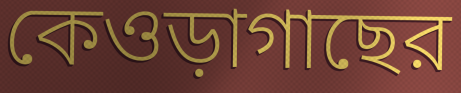
কেওড়াগাছের